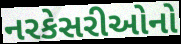
નરકેસરીઓનો